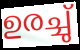
ഉരച്ചു്